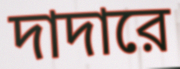
দাদারে